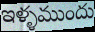
ఇళ్ళముందు